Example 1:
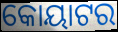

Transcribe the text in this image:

କୋୟାଟର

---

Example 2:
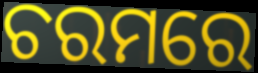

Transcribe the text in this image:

ଚରମରେ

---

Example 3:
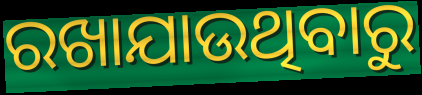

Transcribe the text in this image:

ରଖାଯାଉଥିବାରୁ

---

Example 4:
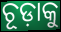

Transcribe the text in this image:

ଚୂଡ଼ାକୁ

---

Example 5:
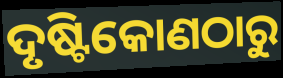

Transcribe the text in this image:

ଦୃଷ୍ଟିକୋଣଠାରୁ